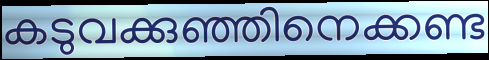
കടുവക്കുഞ്ഞിനെക്കണ്ട